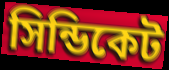
সিন্ডিকেট